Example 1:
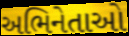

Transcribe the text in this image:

અભિનેતાઓ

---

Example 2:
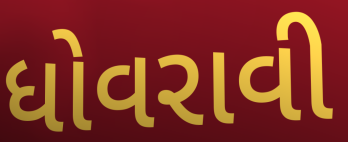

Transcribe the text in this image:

ધોવરાવી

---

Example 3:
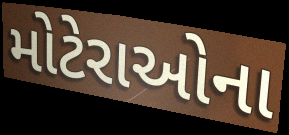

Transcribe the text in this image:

મોટેરાઓના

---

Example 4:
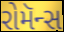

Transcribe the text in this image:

રોમૅન્સ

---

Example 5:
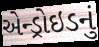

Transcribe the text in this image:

એન્ડ્રોઇડનું